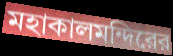
মহাকালমন্দিরের